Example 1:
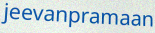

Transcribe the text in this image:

jeevanpramaan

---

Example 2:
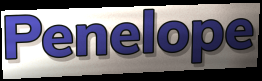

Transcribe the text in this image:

Penelope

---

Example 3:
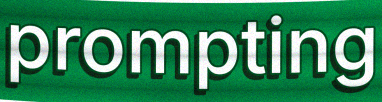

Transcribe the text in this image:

prompting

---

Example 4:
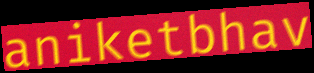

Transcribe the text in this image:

aniketbhav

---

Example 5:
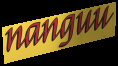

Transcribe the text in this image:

nanguu